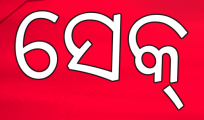
ସେକ୍